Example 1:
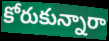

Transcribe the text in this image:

కోరుకున్నారా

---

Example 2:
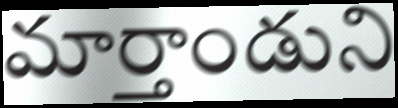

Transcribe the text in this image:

మార్తాండుని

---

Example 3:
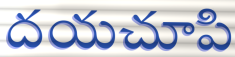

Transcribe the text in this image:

దయచూపి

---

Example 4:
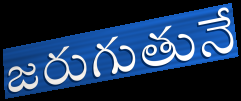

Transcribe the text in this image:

జరుగుతునే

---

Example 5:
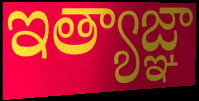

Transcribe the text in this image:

ఇత్యాజ్ఞా